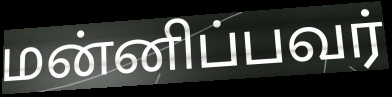
மன்னிப்பவர்